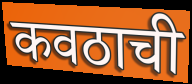
कवठाची